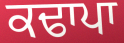
ਕਢਾਪਾ